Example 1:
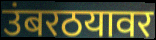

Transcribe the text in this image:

उंबरठयावर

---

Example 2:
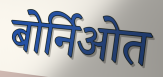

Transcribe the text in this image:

बोर्निओत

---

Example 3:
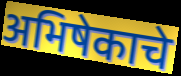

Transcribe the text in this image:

अभिषेकाचे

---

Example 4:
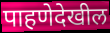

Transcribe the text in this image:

पाहणेदेखील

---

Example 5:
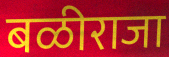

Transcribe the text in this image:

बळीराजा